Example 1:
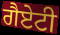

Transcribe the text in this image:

ਗੈਏਟੀ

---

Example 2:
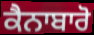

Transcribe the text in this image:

ਕੈਨਾਬਾਰੋ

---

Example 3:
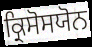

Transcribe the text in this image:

ਕ੍ਰਿਸੋਸਯੋਨ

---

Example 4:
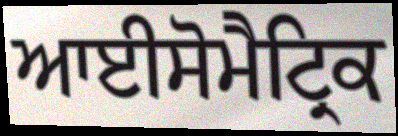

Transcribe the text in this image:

ਆਈਸੋਮੈਟ੍ਰਿਕ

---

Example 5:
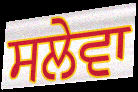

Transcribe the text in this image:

ਸਲੇਵਾ